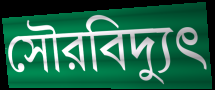
সৌরবিদ্যুৎ